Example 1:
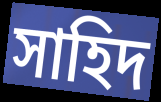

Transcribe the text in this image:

সাহিদ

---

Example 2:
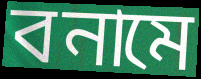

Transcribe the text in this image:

বনামে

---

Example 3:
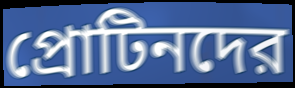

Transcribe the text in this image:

প্রোটিনদের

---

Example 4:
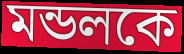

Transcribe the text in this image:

মন্ডলকে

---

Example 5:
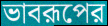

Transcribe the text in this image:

ভাবরূপের